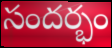
సందర్భం